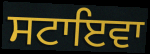
ਸਟਾਇਵਾ